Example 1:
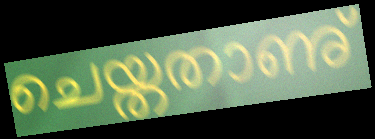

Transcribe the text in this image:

ചെയ്തതാണു്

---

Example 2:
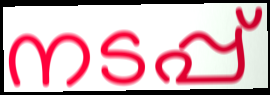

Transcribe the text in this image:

നടപ്പ്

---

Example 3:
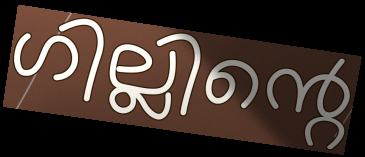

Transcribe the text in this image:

ഗില്ലിന്റെ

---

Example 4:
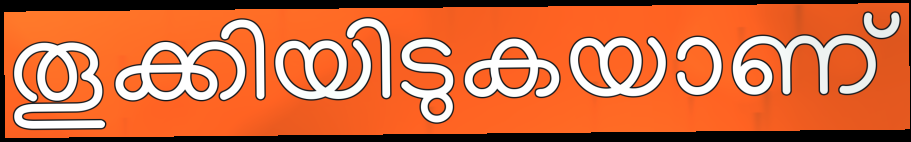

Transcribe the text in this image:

തൂക്കിയിടുകയാണ്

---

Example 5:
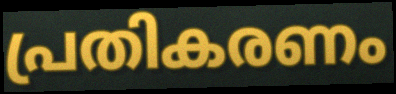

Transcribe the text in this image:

പ്രതികരണം